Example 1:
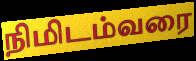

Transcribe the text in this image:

நிமிடம்வரை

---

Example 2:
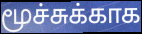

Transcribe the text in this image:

மூச்சுக்காக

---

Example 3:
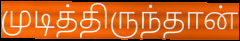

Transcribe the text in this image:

முடித்திருந்தான்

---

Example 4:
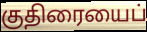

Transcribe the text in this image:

குதிரையைப்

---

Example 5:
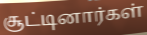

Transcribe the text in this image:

சூட்டினார்கள்